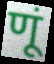
णूं